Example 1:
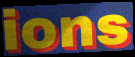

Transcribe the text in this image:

ions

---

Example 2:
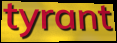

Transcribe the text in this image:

tyrant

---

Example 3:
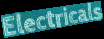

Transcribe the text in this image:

Electricals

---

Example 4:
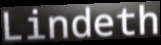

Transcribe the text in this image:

Lindeth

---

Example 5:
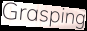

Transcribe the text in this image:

Grasping